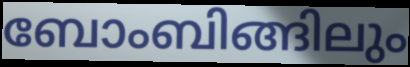
ബോംബിങ്ങിലും